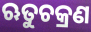
ଋତୁଚକ୍ରଣ